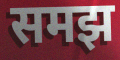
समझ